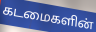
கடமைகளின்